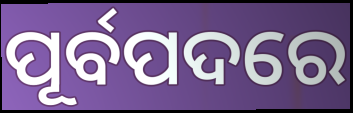
ପୂର୍ବପଦରେ